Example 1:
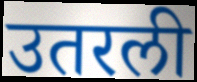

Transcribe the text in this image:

उतरली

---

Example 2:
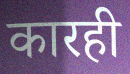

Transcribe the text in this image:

कारही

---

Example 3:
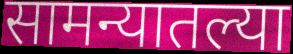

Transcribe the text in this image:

सामन्यातल्या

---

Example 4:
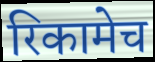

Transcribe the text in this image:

रिकामेच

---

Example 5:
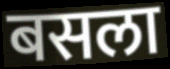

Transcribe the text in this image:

बसला